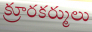
క్రూరకర్ములు